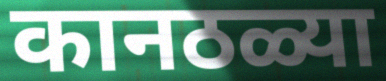
कानठळ्या